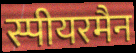
स्पीयरमैन